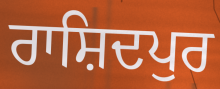
ਰਾਸ਼ਿਦਪੁਰ